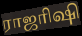
ராஜரிஷி